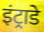
इंट्राडे